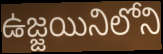
ఉజ్జయినిలోని